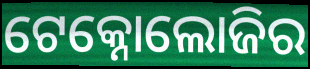
ଟେକ୍ନୋଲୋଜିର